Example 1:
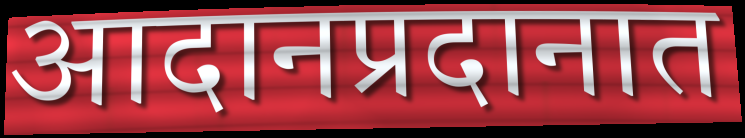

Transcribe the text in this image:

आदानप्रदानात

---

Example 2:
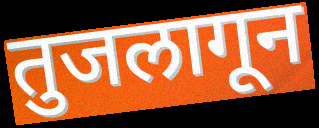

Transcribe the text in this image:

तुजलागून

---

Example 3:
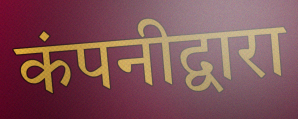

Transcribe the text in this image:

कंपनीद्वारा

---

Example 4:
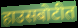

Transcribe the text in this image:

हाउसबोटीत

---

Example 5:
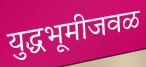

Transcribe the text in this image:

युद्धभूमीजवळ